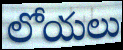
లోయలు